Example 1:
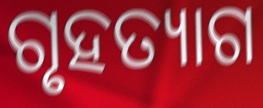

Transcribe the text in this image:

ଗୃହତ୍ୟାଗ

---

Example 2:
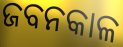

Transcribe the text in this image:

ଜବନକାଳ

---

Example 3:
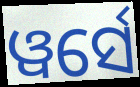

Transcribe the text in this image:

ୱର୍ସେ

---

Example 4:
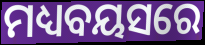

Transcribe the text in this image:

ମଧ୍ୟବୟସରେ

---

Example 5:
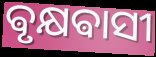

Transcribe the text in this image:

ଵୃକ୍ଷଵାସୀ